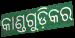
କାଣ୍ଡଗୁଡ଼ିକର